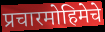
प्रचारमोहिमेचे